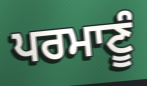
ਪਰਮਾਣੂੰ